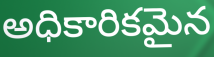
అధికారికమైన